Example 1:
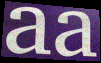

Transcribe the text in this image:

aa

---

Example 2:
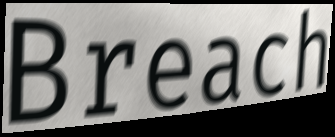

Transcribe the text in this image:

Breach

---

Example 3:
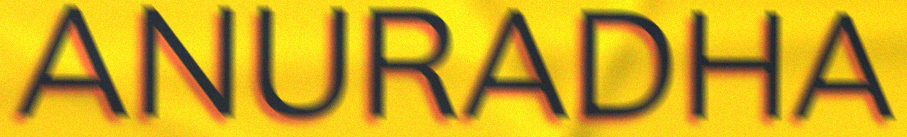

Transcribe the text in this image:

ANURADHA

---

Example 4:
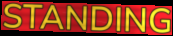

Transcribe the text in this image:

STANDING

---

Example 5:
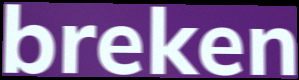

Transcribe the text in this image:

breken